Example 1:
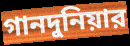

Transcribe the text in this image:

গানদুনিয়ার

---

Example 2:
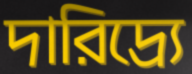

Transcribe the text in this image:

দারিদ্র্যে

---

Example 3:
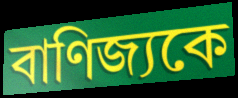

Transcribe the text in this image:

বাণিজ্যকে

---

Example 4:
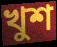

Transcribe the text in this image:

খুশ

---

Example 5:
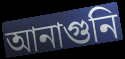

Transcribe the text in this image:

আনাগুনি